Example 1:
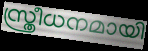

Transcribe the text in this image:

സ്ത്രീധനമായി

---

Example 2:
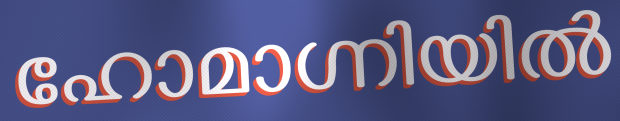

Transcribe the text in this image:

ഹോമാഗ്നിയിൽ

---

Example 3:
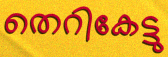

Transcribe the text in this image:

തെറികേട്ടു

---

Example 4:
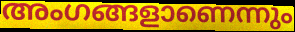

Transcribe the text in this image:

അംഗങ്ങളാണെന്നും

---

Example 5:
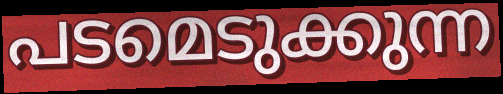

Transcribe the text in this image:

പടമെടുക്കുന്ന